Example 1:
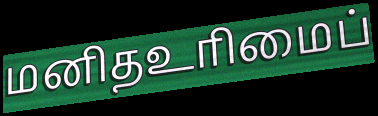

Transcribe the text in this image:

மனிதஉரிமைப்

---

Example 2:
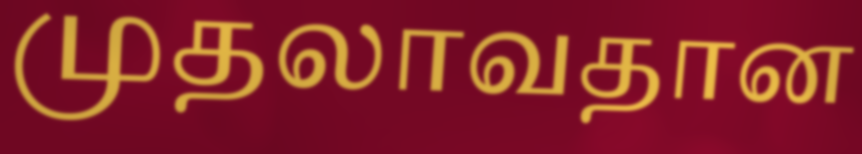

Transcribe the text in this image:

முதலாவதான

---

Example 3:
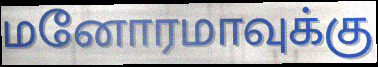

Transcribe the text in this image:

மனோரமாவுக்கு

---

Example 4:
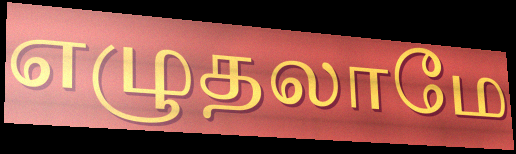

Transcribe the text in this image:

எழுதலாமே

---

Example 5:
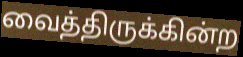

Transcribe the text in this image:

வைத்திருக்கின்ற